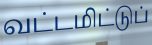
வட்டமிட்டுப்